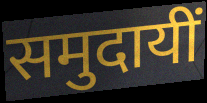
समुदायीं